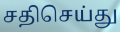
சதிசெய்து